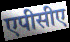
एपीसीए